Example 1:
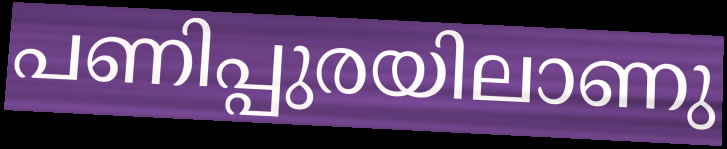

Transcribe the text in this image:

പണിപ്പുരയിലാണു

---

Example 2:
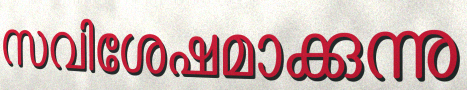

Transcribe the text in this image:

സവിശേഷമാക്കുന്നു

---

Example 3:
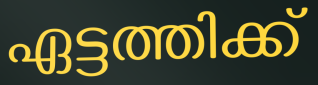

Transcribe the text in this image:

ഏട്ടത്തിക്ക്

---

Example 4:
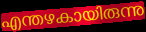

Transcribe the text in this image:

എന്തഴകായിരുന്നു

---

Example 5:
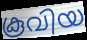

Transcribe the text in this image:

കൂവിയ